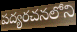
పద్యరచనలోని